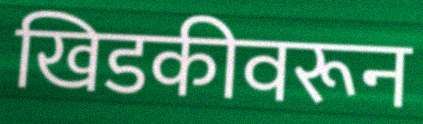
खिडकीवरून